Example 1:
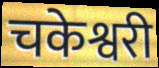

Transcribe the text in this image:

चकेश्वरी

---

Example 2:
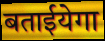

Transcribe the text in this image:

बताईयेगा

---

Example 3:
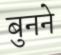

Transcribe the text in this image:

बुनने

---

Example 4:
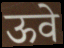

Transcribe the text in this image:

ऊवे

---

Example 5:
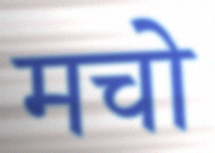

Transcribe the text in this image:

मचो